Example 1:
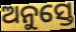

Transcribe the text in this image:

ଅନୁସ୍ତେ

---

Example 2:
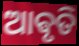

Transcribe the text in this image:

ଆଵୃତି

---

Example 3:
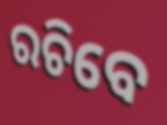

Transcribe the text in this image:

ରଚିବେ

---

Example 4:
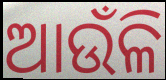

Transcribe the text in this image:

ଆଉଁଳି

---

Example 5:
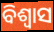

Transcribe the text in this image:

ବିଶ୍ଵାସ